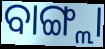
ବାଙ୍ଗ୍ଲା